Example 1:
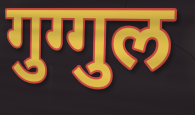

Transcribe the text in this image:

गुग्गुल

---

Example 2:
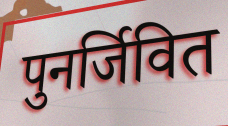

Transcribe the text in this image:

पुनर्जिवित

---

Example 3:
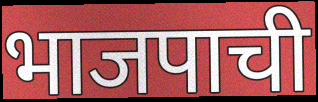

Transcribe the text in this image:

भाजपाची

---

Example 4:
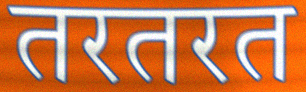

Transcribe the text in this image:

तरतरत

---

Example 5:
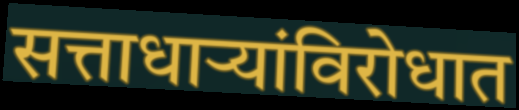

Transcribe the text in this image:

सत्ताधाऱ्यांविरोधात